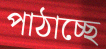
পাঠাচ্ছে